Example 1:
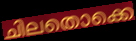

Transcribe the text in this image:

ചിലതൊക്കെ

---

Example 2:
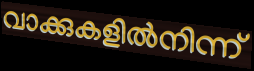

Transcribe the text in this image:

വാക്കുകളിൽനിന്ന്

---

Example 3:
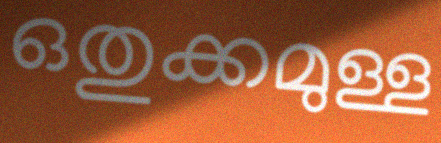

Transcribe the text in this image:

ഒതുക്കമുള്ള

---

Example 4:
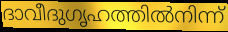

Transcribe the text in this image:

ദാവീദുഗൃഹത്തിൽനിന്ന്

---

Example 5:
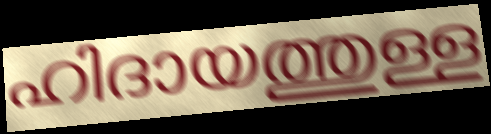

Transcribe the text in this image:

ഹിദായത്തുള്ള